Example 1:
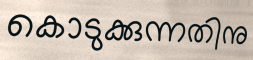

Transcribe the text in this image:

കൊടുക്കുന്നതിനു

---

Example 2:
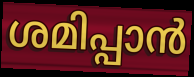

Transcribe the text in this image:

ശമിപ്പാൻ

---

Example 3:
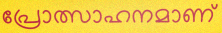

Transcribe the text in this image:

പ്രോത്സാഹനമാണ്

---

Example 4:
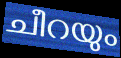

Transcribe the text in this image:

ചീറയും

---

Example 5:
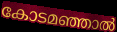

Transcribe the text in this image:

കോടമഞ്ഞാൽ